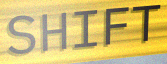
SHIFT